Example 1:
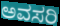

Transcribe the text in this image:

ಅವಸರಿ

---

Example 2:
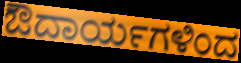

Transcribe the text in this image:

ಔದಾರ್ಯಗಳಿಂದ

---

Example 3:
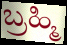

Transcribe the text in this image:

ಬ್ರಹ್ಮಿ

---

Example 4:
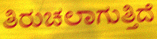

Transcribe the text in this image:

ತಿರುಚಲಾಗುತ್ತಿದೆ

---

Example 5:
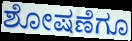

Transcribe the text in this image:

ಶೋಷಣೆಗೂ